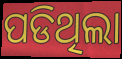
ପଡିଥିଲା